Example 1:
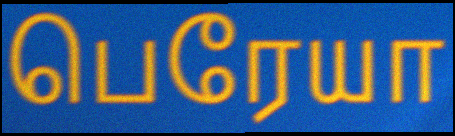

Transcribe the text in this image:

பெரேயா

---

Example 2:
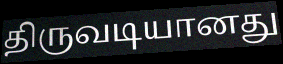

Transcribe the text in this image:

திருவடியானது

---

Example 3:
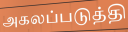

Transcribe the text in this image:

அகலப்படுத்தி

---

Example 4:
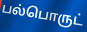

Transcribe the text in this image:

பல்பொருட்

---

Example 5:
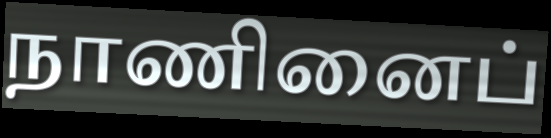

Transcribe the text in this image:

நாணினைப்